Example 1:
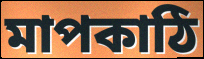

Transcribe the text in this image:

মাপকাঠি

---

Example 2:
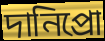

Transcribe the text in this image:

দানিপ্রো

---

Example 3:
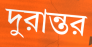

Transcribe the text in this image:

দুরান্তর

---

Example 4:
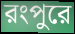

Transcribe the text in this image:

রংপুরে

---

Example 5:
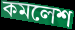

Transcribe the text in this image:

কমলেশ